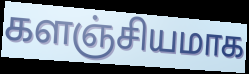
களஞ்சியமாக